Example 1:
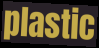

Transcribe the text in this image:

plastic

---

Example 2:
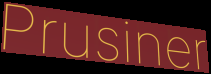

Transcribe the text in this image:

Prusiner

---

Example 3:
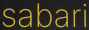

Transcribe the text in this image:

sabari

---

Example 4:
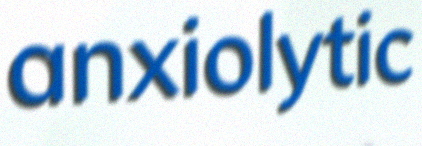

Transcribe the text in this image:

anxiolytic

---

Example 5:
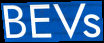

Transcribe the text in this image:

BEVs